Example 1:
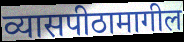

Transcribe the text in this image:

व्यासपीठामागील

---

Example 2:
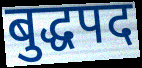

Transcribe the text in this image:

बुद्धपद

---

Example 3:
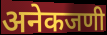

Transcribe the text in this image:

अनेकजणी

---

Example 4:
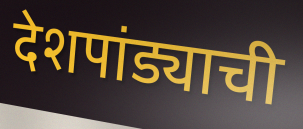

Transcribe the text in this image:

देशपांड्याची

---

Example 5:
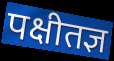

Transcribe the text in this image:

पक्षीतज्ञ